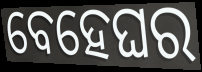
ବେହେଘର